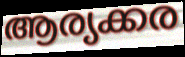
ആര്യക്കര